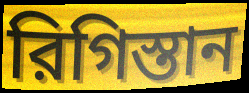
রিগিস্তান